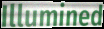
Illumined